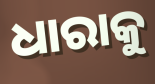
ଧାରାକୁ